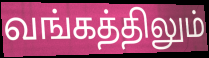
வங்கத்திலும்